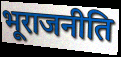
भूराजनीति